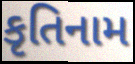
કૃતિનામ